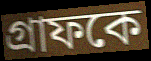
গ্রাফকে